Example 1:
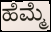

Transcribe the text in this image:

ಹೆಮ್ಮೆ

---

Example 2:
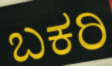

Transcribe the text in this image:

ಬಕರಿ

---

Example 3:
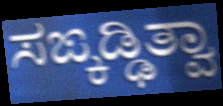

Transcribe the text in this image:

ಸಙ್ಕಡ್ಢಿತ್ವಾ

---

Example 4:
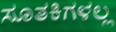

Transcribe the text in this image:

ಸೂತಕಿಗಳಲ್ಲ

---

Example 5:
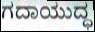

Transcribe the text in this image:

ಗದಾಯುದ್ಧ